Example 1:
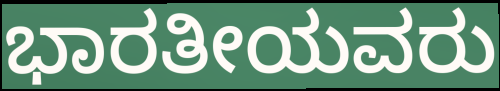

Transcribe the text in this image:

ಭಾರತೀಯವರು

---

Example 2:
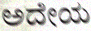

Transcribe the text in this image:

ಅದೇಯ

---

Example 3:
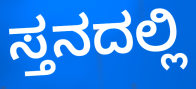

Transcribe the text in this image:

ಸ್ತನದಲ್ಲಿ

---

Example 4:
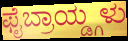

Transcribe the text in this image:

ಫೈಬ್ರಾಯ್ಡ್ಗಳು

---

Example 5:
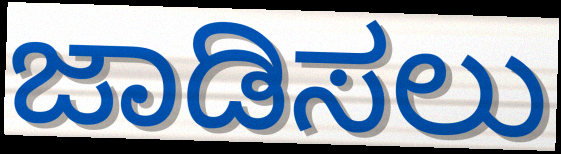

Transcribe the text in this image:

ಜಾಡಿಸಲು